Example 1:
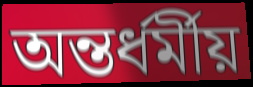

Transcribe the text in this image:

অন্তর্ধর্মীয়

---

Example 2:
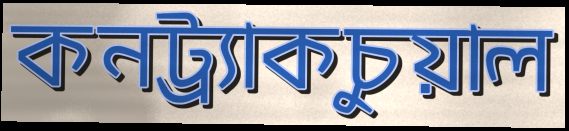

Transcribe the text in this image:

কনট্র্যাকচুয়াল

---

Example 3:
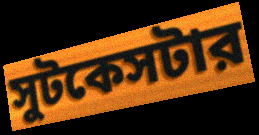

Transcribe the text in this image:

সুটকেসটার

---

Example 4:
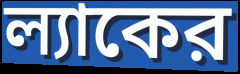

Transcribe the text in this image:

ল্যাকের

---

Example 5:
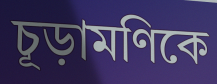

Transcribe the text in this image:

চূড়ামণিকে